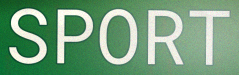
SPORT